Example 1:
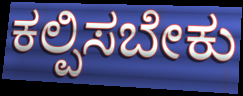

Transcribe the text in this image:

ಕಲ್ಪಿಸಬೇಕು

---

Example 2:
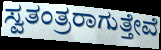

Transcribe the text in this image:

ಸ್ವತಂತ್ರರಾಗುತ್ತೇವೆ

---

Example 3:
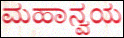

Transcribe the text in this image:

ಮಹಾನ್ವಯ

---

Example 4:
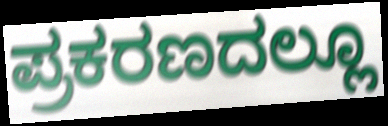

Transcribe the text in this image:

ಪ್ರಕರಣದಲ್ಲೂ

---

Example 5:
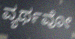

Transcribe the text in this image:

ವ್ಯರ್ಥವೋ